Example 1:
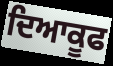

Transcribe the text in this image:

ਦਿਆਕੂਫ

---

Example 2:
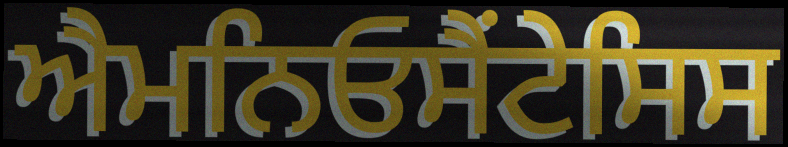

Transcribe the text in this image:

ਐਮਨਿਓਸੈਂਟੇਸਿਸ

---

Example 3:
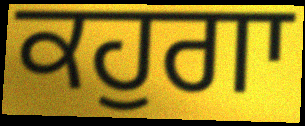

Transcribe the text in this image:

ਕਹੁਗਾ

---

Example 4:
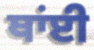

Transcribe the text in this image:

ਥਾਂਈ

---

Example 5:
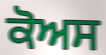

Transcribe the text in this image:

ਕੋਅਸ